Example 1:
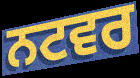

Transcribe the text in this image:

ਨਟਵਰ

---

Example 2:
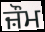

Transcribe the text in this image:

ਜ਼ੌਮ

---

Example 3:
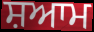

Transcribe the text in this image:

ਸ਼ਆਮ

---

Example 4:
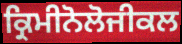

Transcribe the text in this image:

ਕ੍ਰਿਮੀਨੋਲੋਜੀਕਲ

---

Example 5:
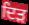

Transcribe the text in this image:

ਦਿੜ